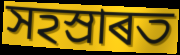
সহস্ৰাৰত